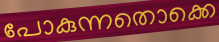
പോകുന്നതൊക്കെ